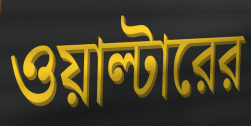
ওয়াল্টারের